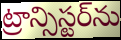
ట్రాన్సిస్టర్‌ను